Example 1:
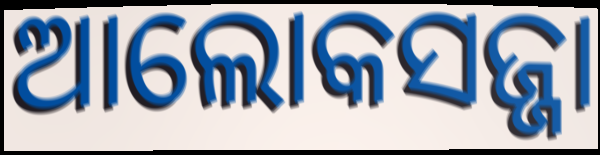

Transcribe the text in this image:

ଆଲୋକସଜ୍ଜା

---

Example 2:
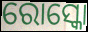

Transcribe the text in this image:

ରୋସ୍କୋ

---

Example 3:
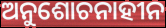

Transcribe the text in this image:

ଅନୁଶୋଚନାହୀନ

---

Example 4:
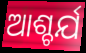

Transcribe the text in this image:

ଆଶ୍ଚର୍ଯ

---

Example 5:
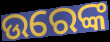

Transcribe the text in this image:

ଉରେଙ୍କ